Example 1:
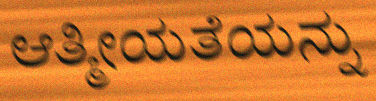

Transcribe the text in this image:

ಆತ್ಮೀಯತೆಯನ್ನು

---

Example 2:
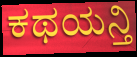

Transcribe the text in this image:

ಕಥಯನ್ತಿ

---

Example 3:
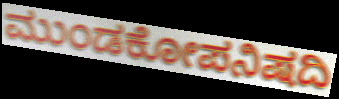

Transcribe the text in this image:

ಮುಂಡಕೋಪನಿಷದಿ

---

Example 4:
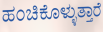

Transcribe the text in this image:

ಹಂಚಿಕೊಳ್ಳುತ್ತಾರೆ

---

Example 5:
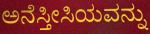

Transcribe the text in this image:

ಅನೆಸ್ತೀಸಿಯವನ್ನು